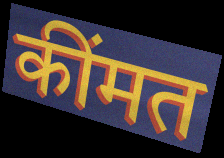
कींमत